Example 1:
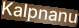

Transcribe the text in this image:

Kalpnanu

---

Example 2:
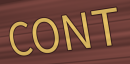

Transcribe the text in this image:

CONT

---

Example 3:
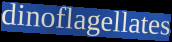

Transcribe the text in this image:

dinoflagellates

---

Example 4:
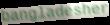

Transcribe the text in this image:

bangladesher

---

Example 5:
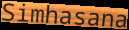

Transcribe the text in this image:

Simhasana